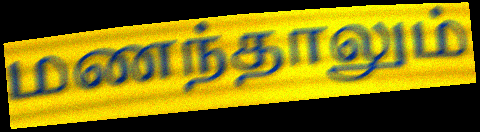
மணந்தாலும்